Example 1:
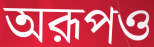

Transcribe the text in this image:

অরূপও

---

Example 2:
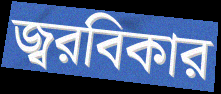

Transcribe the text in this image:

জ্বরবিকার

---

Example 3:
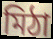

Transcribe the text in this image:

মিঠা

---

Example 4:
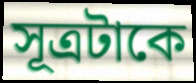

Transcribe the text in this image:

সূত্রটাকে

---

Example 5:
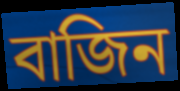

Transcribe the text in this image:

বাজিন